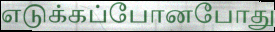
எடுக்கப்போனபோது